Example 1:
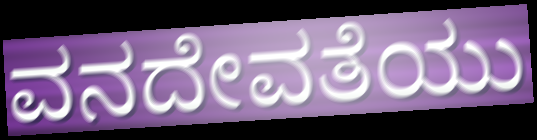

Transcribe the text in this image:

ವನದೇವತೆಯು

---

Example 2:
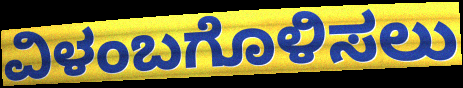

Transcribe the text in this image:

ವಿಳಂಬಗೊಳಿಸಲು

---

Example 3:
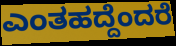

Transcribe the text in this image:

ಎಂತಹದ್ದೆಂದರೆ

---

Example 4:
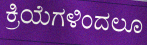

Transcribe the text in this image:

ಕ್ರಿಯೆಗಳಿಂದಲೂ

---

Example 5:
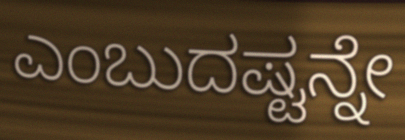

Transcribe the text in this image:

ಎಂಬುದಷ್ಟನ್ನೇ